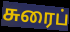
சுரைப்